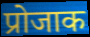
प्रोजाक